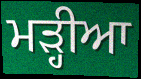
ਮੜ੍ਹੀਆ